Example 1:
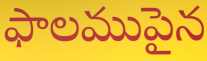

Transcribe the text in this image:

ఫాలముపైన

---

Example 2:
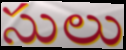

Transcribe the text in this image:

సులు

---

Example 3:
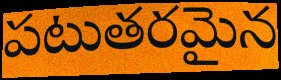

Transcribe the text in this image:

పటుతరమైన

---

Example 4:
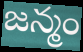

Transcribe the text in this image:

జన్మం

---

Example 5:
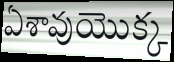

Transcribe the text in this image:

ఏశావుయొక్క